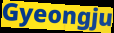
Gyeongju